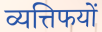
व्यत्तिफयों